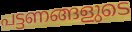
പട്ടണങ്ങളുടെ